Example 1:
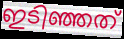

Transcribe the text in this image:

ഇടിഞ്ഞത്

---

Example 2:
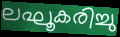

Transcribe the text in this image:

ലഘൂകരിച്ചു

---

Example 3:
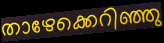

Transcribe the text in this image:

താഴേക്കെറിഞ്ഞു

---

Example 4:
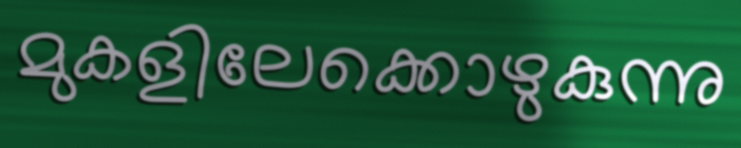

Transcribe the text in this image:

മുകളിലേക്കൊഴുകുന്നു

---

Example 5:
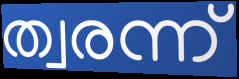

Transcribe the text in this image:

ത്വരന്ന്